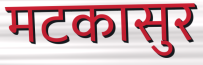
मटकासुर